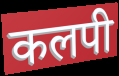
कलपी